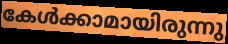
കേൾക്കാമായിരുന്നു